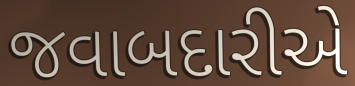
જવાબદારીએ